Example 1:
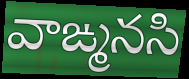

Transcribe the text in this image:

వాఙ్మనసి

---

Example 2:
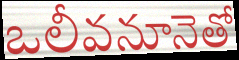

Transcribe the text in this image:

ఒలీవనూనెతో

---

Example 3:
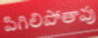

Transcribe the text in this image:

పిగిలిపోతావు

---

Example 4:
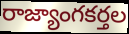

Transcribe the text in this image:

రాజ్యాంగకర్తల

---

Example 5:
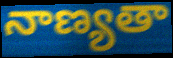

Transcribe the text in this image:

నాణ్యతా